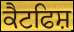
ਕੈਟਫਿਸ਼